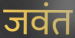
जवंत